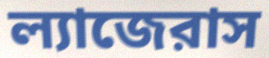
ল্যাজেরাস